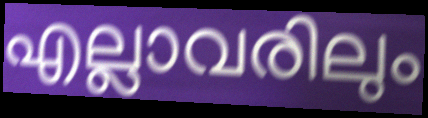
എല്ലാവരിലും